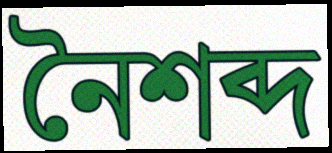
নৈশব্দ